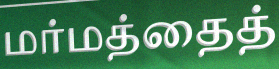
மர்மத்தைத்